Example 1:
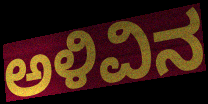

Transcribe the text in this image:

ಅಳಿವಿನ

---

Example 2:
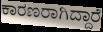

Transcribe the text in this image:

ಕಾರಣರಾಗಿದ್ದಾರೆ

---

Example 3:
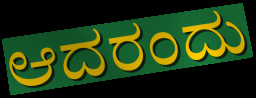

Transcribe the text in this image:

ಆದರಂದು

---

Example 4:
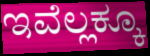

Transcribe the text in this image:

ಇವೆಲ್ಲಕ್ಕೂ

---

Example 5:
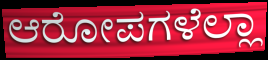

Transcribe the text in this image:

ಆರೋಪಗಳೆಲ್ಲಾ